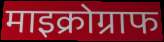
माइक्रोग्राफ